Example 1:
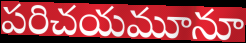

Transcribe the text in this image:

పరిచయమూనూ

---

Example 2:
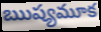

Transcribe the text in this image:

ఋష్యమూక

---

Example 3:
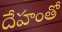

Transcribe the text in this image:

దేహంతో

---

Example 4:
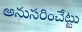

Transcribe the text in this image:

అనుసరించేట్టు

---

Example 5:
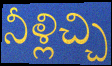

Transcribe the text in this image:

నీళ్లిచ్చి